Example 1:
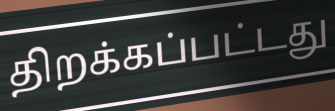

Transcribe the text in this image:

திறக்கப்பட்டது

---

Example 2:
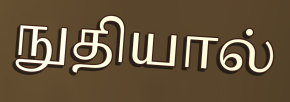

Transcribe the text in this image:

நுதியால்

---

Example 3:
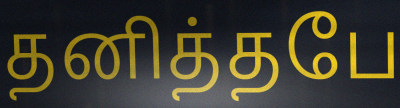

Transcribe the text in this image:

தனித்தபே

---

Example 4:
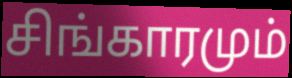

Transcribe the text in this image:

சிங்காரமும்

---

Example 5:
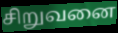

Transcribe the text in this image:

சிறுவனை